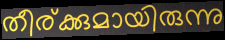
തീര്ക്കുമായിരുന്നു